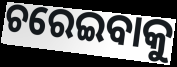
ଚରେଇବାକୁ